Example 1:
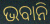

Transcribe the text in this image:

ଭବାନି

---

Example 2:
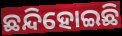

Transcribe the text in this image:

ଛନ୍ଦିହୋଇଛି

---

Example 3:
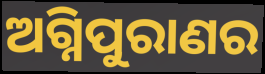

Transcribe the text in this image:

ଅଗ୍ନିପୁରାଣର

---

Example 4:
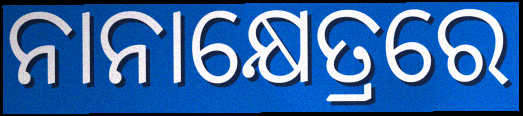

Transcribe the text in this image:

ନାନାକ୍ଷେତ୍ରରେ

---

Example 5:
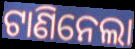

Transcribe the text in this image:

ଟାଣିନେଲା